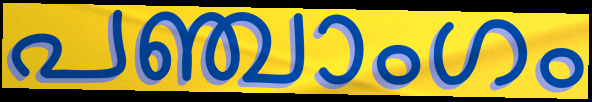
പഞ്ചാംഗം